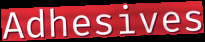
Adhesives